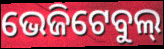
ଭେଜିଟେବୁଲ୍